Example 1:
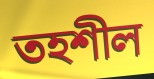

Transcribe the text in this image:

তহশীল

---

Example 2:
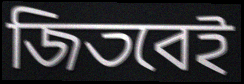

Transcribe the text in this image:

জিতবেই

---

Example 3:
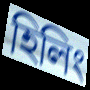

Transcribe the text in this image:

হিলিং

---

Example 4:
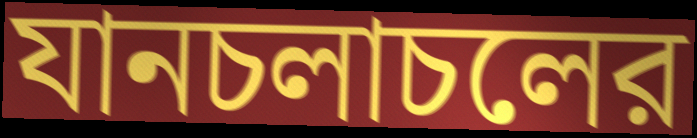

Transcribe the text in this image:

যানচলাচলের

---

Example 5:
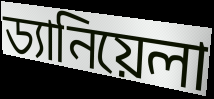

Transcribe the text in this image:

ড্যানিয়েলা